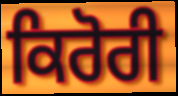
ਕਿਰੋਰੀ